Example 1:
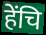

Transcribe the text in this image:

हेंचि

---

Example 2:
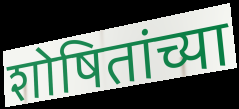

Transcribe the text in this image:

शोषितांच्या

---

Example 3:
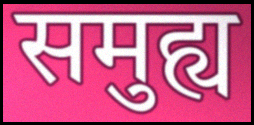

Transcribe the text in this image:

समुह्य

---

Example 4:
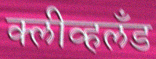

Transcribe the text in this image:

क्लीव्हलँड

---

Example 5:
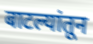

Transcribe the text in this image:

बाटल्यांतून